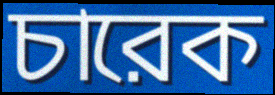
চারেক